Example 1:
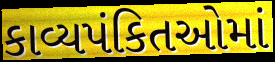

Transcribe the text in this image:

કાવ્યપંકિતઓમાં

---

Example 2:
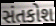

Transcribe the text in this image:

સંતકોશ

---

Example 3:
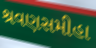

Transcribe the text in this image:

શ્રવણસમીહા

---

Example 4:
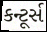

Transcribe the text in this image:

કન્ટૂર્સ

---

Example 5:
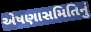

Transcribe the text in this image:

એષણાસમિતિનું